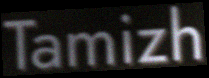
Tamizh